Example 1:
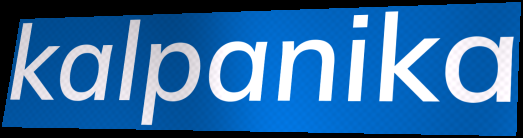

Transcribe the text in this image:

kalpanika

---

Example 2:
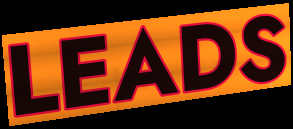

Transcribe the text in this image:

LEADS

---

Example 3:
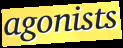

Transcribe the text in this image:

agonists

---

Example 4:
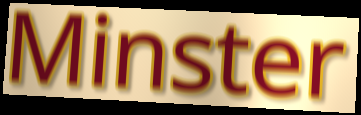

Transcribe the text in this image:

Minster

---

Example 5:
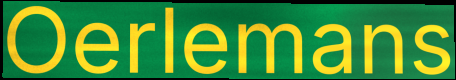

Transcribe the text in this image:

Oerlemans